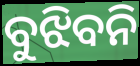
ବୁଝିବନି